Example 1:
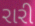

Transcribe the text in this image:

રારી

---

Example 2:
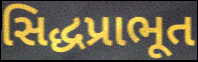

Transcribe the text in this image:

સિદ્ધપ્રાભૂત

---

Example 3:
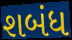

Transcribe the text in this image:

શબંધ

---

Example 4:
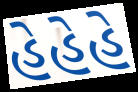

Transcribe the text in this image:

હેહેહે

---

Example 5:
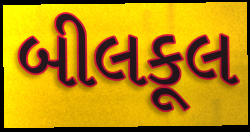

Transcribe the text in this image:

બીલકૂલ